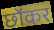
छोंकर